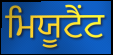
ਮਿਯੂਟੈਂਟ